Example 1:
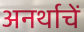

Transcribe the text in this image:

अनर्थाचें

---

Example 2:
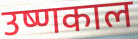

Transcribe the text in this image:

उष्णकाल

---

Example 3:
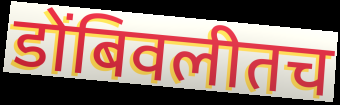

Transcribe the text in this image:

डोंबिवलीतच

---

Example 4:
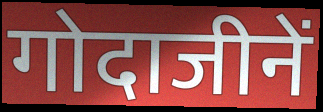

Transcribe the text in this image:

गोदाजीनें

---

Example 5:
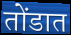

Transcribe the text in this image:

तोंडात